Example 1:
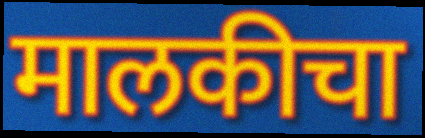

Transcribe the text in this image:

मालकीचा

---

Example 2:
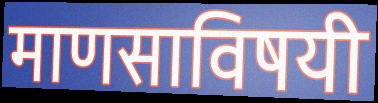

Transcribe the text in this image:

माणसाविषयी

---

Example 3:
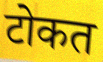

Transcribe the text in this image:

टोकत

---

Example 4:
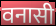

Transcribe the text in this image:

वनासी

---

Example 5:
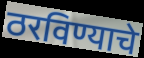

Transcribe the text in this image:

ठरविण्याचे